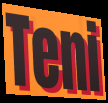
Teni